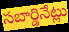
సబార్డినేట్లు